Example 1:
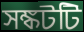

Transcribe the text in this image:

সঙ্কটটি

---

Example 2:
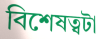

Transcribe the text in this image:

বিশেষত্বটা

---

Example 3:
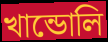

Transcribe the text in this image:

খান্ডোলি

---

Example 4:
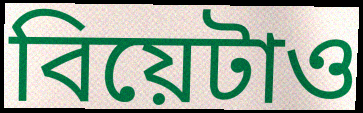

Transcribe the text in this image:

বিয়েটাও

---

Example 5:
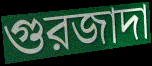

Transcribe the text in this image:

গুরজাদা